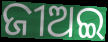
ଜୀଅଇ